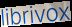
librivox